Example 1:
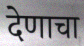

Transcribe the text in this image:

देणाचा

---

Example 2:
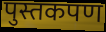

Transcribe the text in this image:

पुस्तकपण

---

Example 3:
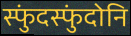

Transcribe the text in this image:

स्फुंदस्फुंदोनि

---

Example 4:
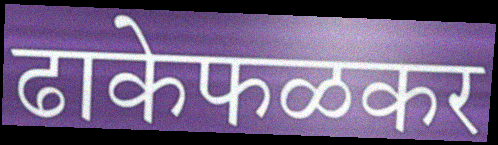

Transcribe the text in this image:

ढाकेफळकर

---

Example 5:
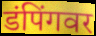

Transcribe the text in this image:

डंपिंगवर